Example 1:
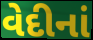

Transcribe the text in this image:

વેદીનાં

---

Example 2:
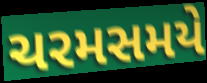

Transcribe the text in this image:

ચરમસમયે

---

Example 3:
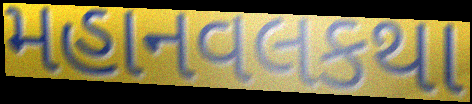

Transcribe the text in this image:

મહાનવલકથા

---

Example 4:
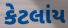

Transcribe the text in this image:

કેટલાંય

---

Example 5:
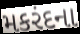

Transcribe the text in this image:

મકરંદના